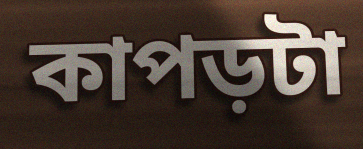
কাপড়টা